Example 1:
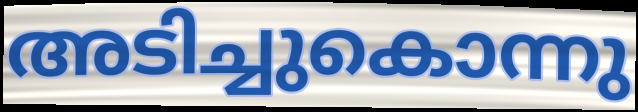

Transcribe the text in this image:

അടിച്ചുകൊന്നു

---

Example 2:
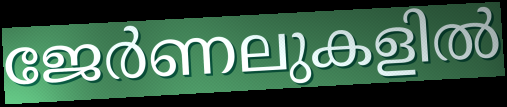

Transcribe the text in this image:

ജേർണലുകളിൽ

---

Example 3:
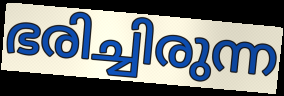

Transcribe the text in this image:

ഭരിച്ചിരുന്ന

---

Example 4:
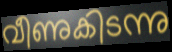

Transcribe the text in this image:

വീണുകിടന്നു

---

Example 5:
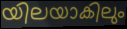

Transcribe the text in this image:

യിലയാകിലും